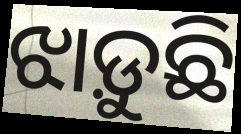
ଝାଡ଼ୁଛି